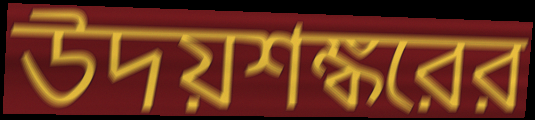
উদয়শঙ্করের